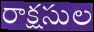
రాక్షసుల